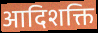
आदिशक्ति